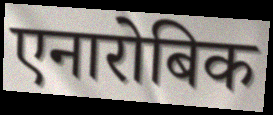
एनारोबिक